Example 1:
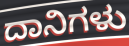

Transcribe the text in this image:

ದಾನಿಗಳು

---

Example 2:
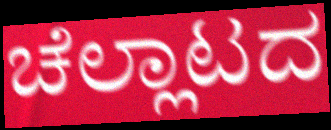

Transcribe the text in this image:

ಚೆಲ್ಲಾಟದ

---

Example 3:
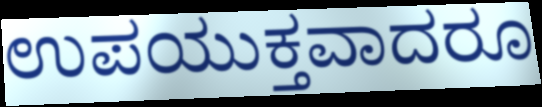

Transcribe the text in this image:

ಉಪಯುಕ್ತವಾದರೂ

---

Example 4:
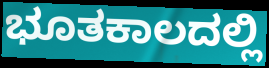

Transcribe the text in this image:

ಭೂತಕಾಲದಲ್ಲಿ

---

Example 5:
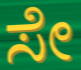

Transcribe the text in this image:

ಸೇ